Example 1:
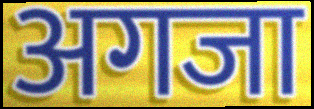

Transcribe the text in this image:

अगजा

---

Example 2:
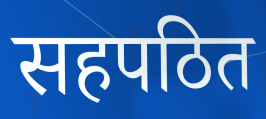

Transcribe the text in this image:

सहपठित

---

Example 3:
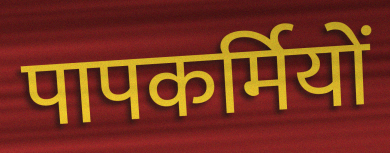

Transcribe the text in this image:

पापकर्मियों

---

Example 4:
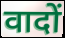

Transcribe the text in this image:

वादों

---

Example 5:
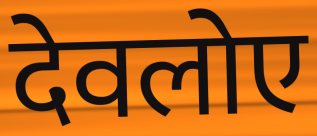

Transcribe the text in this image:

देवलोए